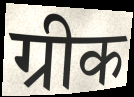
ग्रीक